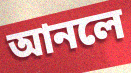
আনলে